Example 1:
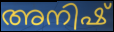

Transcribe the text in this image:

അനിഷ്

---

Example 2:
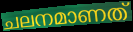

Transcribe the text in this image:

ചലനമാണത്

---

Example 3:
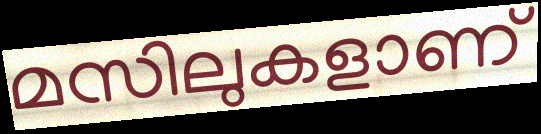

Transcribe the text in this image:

മസിലുകളാണ്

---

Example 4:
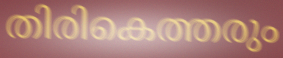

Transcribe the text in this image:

തിരികെത്തരും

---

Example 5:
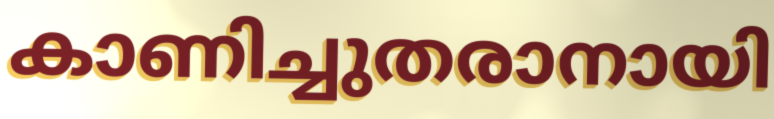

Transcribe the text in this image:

കാണിച്ചുതരാനായി